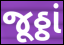
જૂઠ્ઠાં